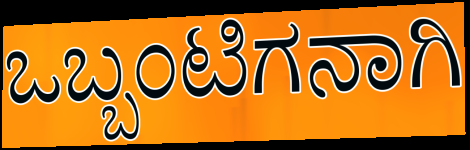
ಒಬ್ಬಂಟಿಗನಾಗಿ